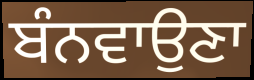
ਬੰਨਵਾਉਣਾ